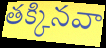
తక్కినవా